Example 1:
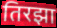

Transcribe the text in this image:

तिरझा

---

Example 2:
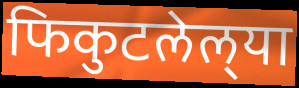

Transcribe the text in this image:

फिकुटलेल्या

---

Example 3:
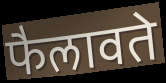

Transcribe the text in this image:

फैलावते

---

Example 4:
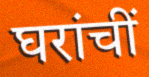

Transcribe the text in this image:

घरांचीं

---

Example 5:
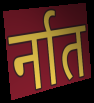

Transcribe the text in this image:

र्नात